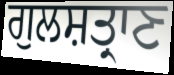
ਗੁਲਸ਼ਤ੍ਰਾਣ